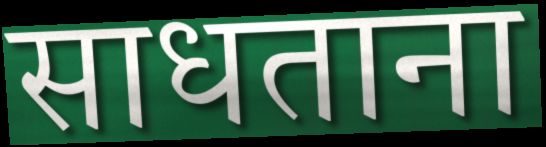
साधताना